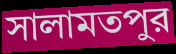
সালামতপুর